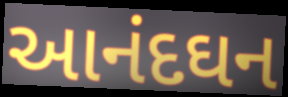
આનંદઘન